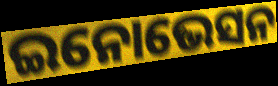
ଇନୋଭେସନ